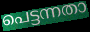
പെട്ടന്നതാ